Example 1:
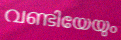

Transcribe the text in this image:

വണ്ടിയേയും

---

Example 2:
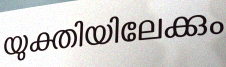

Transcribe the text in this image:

യുക്തിയിലേക്കും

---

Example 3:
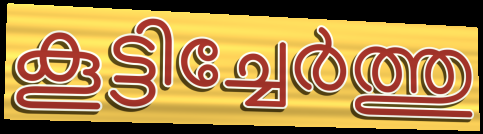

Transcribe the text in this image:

കൂട്ടിച്ചേർത്തു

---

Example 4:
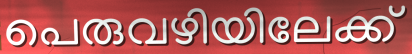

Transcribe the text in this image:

പെരുവഴിയിലേക്ക്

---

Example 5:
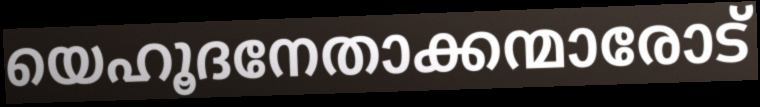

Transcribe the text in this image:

യെഹൂദനേതാക്കന്മാരോട്